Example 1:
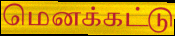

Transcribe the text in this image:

மெனக்கட்டு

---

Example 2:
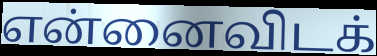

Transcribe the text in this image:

என்னைவிடக்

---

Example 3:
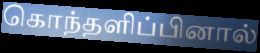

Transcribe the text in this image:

கொந்தளிப்பினால்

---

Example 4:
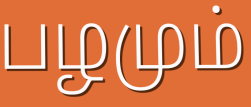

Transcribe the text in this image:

பழமும்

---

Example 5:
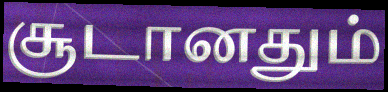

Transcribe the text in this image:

சூடானதும்